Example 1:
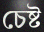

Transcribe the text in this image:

চেষ্ট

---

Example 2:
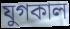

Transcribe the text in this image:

যুগকাল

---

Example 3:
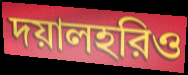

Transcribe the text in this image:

দয়ালহরিও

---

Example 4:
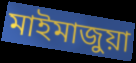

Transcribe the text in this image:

মাইমাজুয়া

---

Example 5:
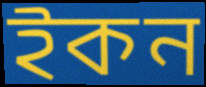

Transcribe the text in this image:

ইকন